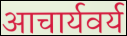
आचार्यवर्य